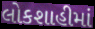
લોકશાહીમાં